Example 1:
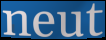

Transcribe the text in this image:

neut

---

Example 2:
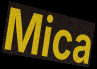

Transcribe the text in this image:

Mica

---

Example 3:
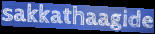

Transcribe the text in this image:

sakkathaagide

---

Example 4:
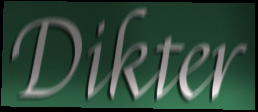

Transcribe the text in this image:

Dikter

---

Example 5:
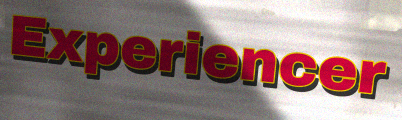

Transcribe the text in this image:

Experiencer